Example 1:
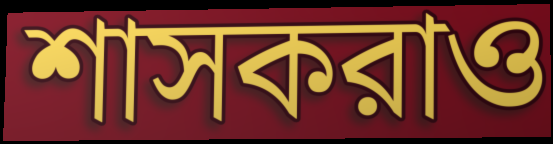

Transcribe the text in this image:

শাসকরাও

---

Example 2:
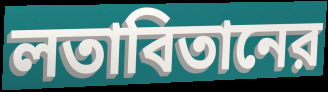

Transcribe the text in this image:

লতাবিতানের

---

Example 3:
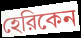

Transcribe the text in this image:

হেরিকেন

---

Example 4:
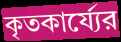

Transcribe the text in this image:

কৃতকার্য্যের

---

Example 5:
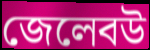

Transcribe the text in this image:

জেলেবউ